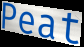
Peat